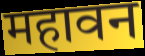
महावन